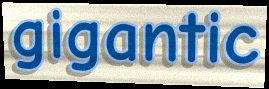
gigantic